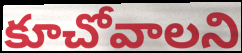
కూచోవాలని